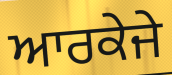
ਆਰਕੇਜੇ